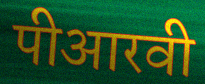
पीआरवी